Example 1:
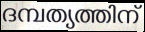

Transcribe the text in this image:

ദമ്പത്യത്തിന്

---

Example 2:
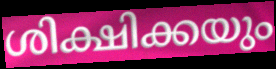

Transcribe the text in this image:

ശിക്ഷിക്കയും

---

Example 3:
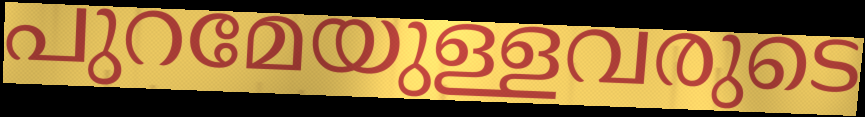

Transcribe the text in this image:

പുറമേയുള്ളവരുടെ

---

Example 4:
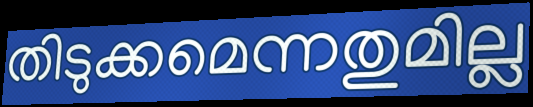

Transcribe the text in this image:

തിടുക്കമെന്നതുമില്ല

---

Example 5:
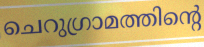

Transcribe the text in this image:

ചെറുഗ്രാമത്തിന്റെ